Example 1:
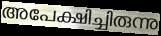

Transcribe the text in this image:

അപേക്ഷിച്ചിരുന്നു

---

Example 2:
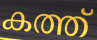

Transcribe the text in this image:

കത്ത്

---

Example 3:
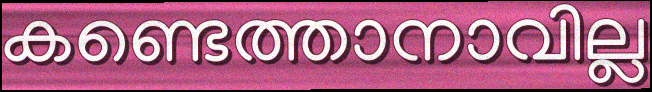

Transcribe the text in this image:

കണ്ടെത്താനാവില്ല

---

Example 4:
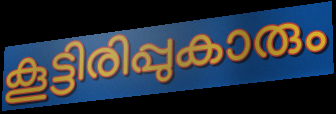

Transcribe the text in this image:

കൂട്ടിരിപ്പുകാരും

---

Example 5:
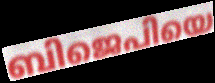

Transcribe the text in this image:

ബിജെപിയെ